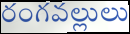
రంగవల్లులు